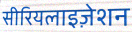
सीरियलाइज़ेशन